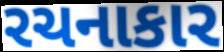
રચનાકાર